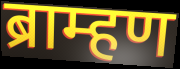
ब्राम्हण